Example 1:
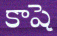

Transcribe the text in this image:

కాషె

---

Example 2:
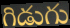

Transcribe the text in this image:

గిడుగు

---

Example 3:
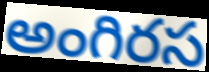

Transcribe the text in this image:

అంగిరస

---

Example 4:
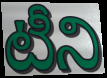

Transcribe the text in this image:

టీని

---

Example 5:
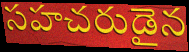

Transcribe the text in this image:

సహచరుడైన